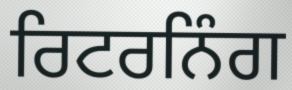
ਰਿਟਰਨਿੰਗ